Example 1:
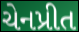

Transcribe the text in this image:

ચેનપ્રીત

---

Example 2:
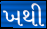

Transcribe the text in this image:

ખથી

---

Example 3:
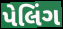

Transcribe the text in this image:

પેલિંગ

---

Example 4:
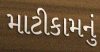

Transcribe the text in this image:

માટીકામનું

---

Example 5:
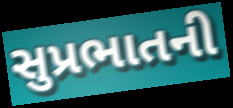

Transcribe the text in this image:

સુપ્રભાતની